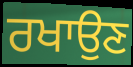
ਰਖਾਉਣ